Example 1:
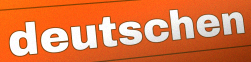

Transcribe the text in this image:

deutschen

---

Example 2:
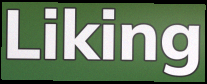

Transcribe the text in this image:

Liking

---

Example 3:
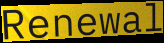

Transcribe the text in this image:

Renewal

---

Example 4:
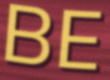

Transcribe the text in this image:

BE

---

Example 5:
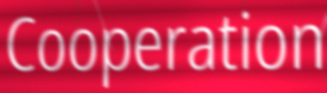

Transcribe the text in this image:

Cooperation